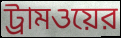
ট্রামওয়ের